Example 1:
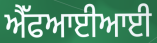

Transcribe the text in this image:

ਐੱਫਆਈਆਈ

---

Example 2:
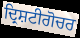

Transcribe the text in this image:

ਦ੍ਰਿਸ਼ਟੀਗੋਚਰ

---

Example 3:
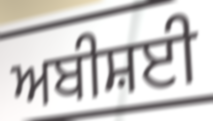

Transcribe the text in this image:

ਅਬੀਸ਼ਈ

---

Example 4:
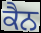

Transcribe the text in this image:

ਕੈਨ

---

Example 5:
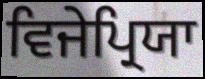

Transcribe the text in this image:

ਵਿਜੇਪ੍ਰਿਯਾ